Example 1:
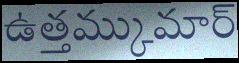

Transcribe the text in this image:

ఉత్తమ్కుమార్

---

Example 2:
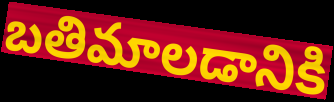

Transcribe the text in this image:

బతిమాలడానికి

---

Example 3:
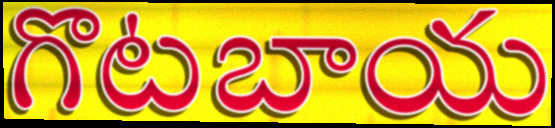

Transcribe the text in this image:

గొటబాయ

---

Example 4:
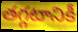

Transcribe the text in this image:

తగ్గటానికీ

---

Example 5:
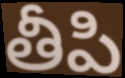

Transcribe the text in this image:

తీపి